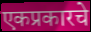
एकप्रकारचे